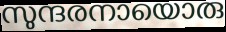
സുന്ദരനായൊരു